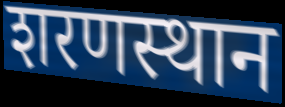
शरणस्थान